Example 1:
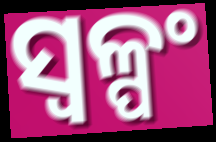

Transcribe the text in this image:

ସ୍ୱଳ୍ପଂ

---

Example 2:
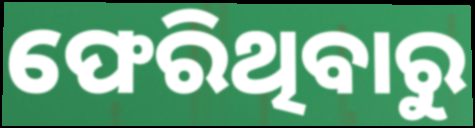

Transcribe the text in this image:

ଫେରିଥିବାରୁ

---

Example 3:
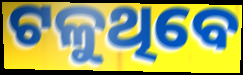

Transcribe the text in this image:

ଟଳୁଥିବେ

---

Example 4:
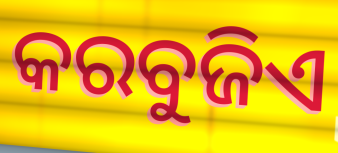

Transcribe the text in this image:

କରବୁଜିଏ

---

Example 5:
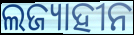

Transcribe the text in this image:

ଲଜ୍ଯାହୀନ